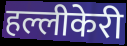
हल्लीकेरी